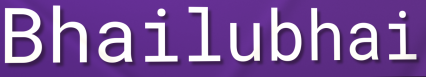
Bhailubhai